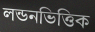
লন্ডনভিত্তিক